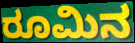
ರೂಮಿನ